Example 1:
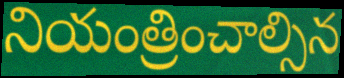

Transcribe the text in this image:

నియంత్రించాల్సిన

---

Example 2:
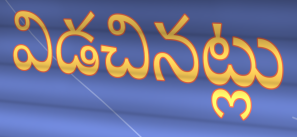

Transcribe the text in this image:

విడచినట్లు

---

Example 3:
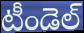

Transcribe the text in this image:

టీండెల్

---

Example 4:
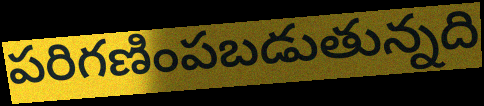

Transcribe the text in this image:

పరిగణింపబడుతున్నది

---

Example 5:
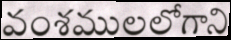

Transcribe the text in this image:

వంశములలోగాని